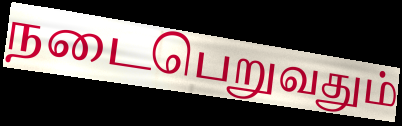
நடைபெறுவதும்